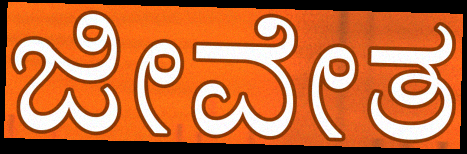
ಜೀವೇತ